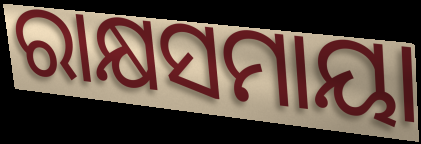
ରାକ୍ଷସମାୟା